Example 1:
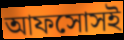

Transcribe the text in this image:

আফসোসই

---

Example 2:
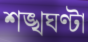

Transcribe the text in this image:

শঙ্খঘণ্টা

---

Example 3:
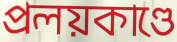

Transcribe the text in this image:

প্রলয়কাণ্ডে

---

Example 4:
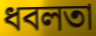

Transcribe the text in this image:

ধবলতা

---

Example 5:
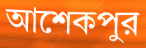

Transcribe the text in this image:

আশেকপুর